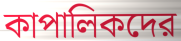
কাপালিকদের